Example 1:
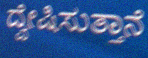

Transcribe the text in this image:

ದ್ವೇಷಿಸುತ್ತಾನೆ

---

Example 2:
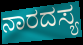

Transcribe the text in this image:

ನಾರದಸ್ಯ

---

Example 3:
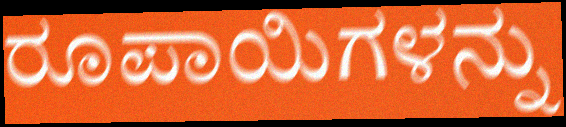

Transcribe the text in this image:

ರೂಪಾಯಿಗಳನ್ನು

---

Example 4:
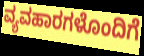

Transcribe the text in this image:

ವ್ಯವಹಾರಗಳೊಂದಿಗೆ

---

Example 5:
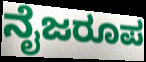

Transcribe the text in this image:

ನೈಜರೂಪ